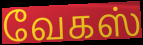
வேகஸ்